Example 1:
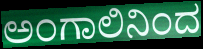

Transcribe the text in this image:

ಅಂಗಾಲಿನಿಂದ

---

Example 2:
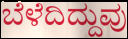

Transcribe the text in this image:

ಬೆಳೆದಿದ್ದುವು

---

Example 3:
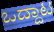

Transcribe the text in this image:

ಒದ್ದಾಟ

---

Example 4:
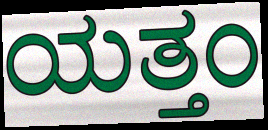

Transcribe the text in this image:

ಯತ್ತಂ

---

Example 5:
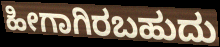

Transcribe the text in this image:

ಹೀಗಾಗಿರಬಹುದು